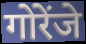
गोरेंजे